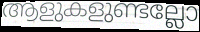
ആളുകളുണ്ടല്ലോ